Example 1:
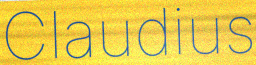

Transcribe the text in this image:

Claudius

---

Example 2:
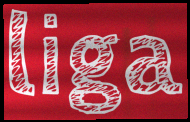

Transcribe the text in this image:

liga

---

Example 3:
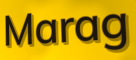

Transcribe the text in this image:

Marag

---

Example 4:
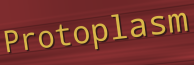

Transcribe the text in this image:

Protoplasm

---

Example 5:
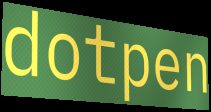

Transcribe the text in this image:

dotpen